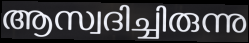
ആസ്വദിച്ചിരുന്നു